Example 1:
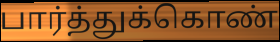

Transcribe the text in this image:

பார்த்துக்கொண்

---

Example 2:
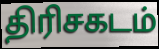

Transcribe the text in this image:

திரிசகடம்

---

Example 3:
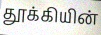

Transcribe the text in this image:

தூக்கியின்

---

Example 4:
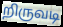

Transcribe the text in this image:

றிருவடி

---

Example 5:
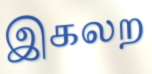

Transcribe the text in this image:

இகலற